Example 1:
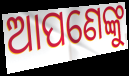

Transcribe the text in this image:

ଆପଣେଙ୍କୁ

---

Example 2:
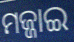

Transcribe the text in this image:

ମଜ୍ଜାଇ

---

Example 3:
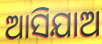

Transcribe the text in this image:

ଆସିଯାଅ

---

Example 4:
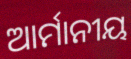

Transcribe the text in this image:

ଆର୍ମାନୀୟ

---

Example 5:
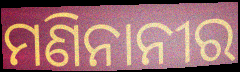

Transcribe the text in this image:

ମଣିନାନୀର